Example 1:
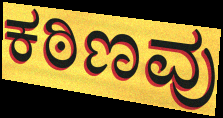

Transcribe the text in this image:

ಕಠಿಣವು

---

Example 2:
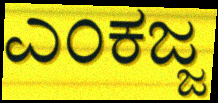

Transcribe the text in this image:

ಎಂಕಜ್ಜ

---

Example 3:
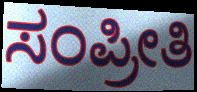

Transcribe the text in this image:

ಸಂಪ್ರೀತಿ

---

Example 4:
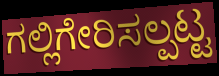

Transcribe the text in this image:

ಗಲ್ಲಿಗೇರಿಸಲ್ಪಟ್ಟ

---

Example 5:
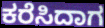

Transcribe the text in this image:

ಕರೆಸಿದಾಗ